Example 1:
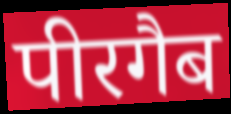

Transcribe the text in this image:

पीरगैब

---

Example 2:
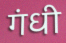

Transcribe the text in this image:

गंधी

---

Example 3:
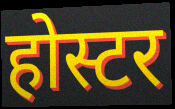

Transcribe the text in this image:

होस्टर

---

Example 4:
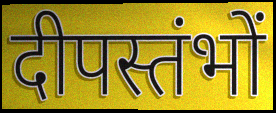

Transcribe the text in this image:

दीपस्तंभों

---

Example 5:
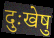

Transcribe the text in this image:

दुःखेषु